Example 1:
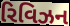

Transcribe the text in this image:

રિવિઝન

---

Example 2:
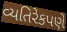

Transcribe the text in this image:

વ્યતિરેકપણે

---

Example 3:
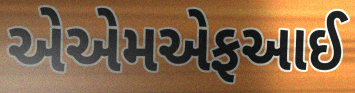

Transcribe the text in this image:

એએમએફઆઈ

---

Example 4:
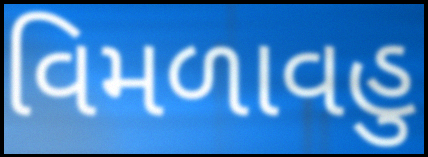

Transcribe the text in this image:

વિમળાવહુ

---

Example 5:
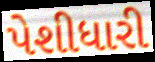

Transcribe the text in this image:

પેશીધારી